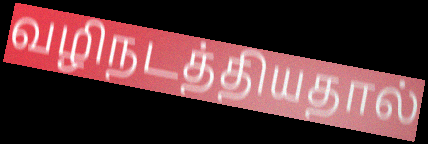
வழிநடத்தியதால்